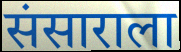
संसाराला